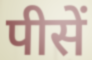
पीसें